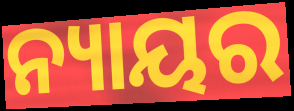
ନ୍ୟାୟର